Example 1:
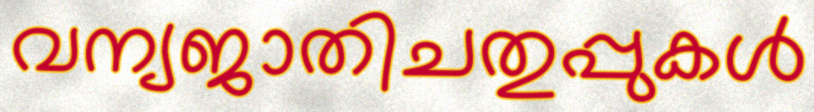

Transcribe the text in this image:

വന്യജാതിചതുപ്പുകൾ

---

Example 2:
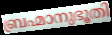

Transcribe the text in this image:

ബ്രഹ്മാനുഭൂതി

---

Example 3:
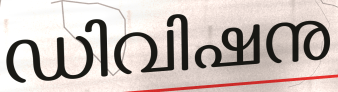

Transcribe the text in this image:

ഡിവിഷനു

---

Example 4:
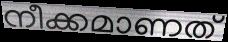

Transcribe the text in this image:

നീക്കമാണത്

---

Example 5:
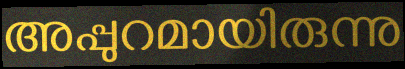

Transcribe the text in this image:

അപ്പുറമായിരുന്നു